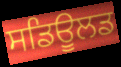
ਸਡਿਊਲਡ